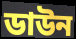
ডাউন